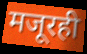
मजूरही